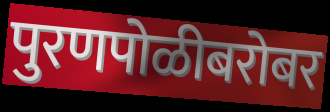
पुरणपोळीबरोबर